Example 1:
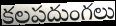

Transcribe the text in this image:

కలపదుంగలు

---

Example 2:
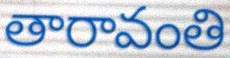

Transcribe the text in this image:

తారావంతి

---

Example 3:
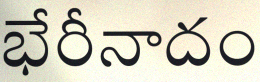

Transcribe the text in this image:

భేరీనాదం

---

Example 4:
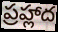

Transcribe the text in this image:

ప్రహ్లాద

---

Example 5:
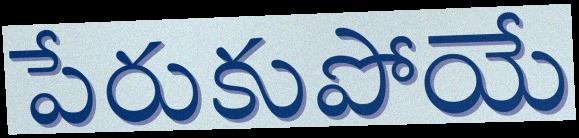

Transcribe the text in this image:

పేరుకుపోయే